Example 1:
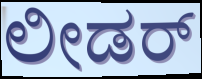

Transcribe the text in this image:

ಲೀಡರ್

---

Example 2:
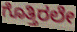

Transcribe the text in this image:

ಗೊತ್ತಿರಲೇ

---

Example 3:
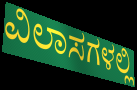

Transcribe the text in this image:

ವಿಲಾಸಗಳಲ್ಲಿ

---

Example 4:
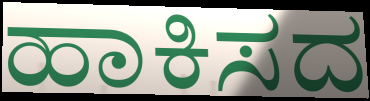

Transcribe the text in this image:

ಹಾಕಿಸದ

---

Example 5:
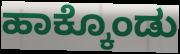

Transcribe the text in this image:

ಹಾಕ್ಕೊಂಡು